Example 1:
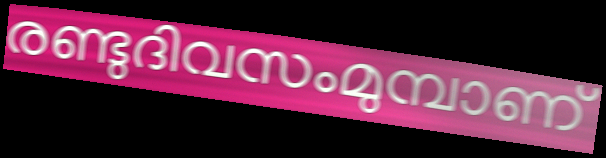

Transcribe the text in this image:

രണ്ടുദിവസംമുമ്പാണ്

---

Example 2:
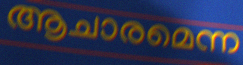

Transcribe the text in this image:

ആചാരമെന്ന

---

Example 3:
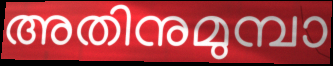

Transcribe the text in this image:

അതിനുമുമ്പാ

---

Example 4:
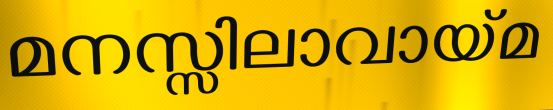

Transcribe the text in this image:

മനസ്സിലാവായ്മ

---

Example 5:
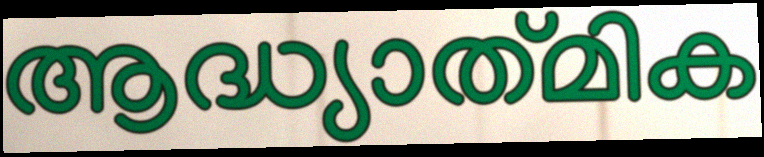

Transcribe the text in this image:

ആദ്ധ്യാത്‌മിക